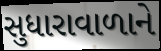
સુધારાવાળાને